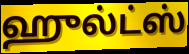
ஹுல்ட்ஸ்